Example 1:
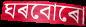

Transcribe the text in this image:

ঘৰবোৰো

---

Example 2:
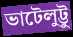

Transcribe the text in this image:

ভাটেলুট্টু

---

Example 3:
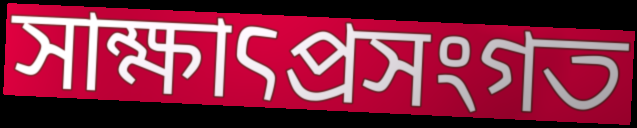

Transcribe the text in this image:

সাক্ষাৎপ্ৰসংগত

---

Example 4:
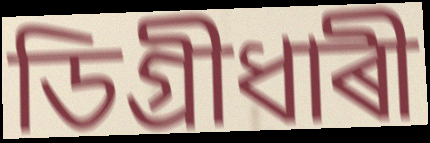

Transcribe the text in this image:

ডিগ্ৰীধাৰী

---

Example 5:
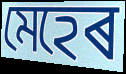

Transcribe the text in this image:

মেহেৰ